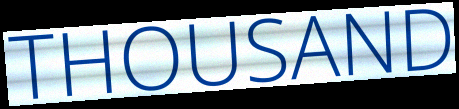
THOUSAND